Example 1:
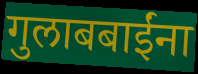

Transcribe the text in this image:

गुलाबबाईंना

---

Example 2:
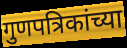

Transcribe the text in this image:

गुणपत्रिकांच्या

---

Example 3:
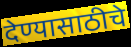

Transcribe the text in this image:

देण्यासाठीचे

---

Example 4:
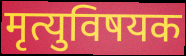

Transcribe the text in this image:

मृत्युविषयक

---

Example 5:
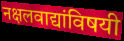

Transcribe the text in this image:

नक्षलवाद्यांविषयी